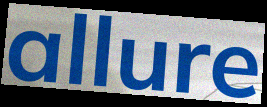
allure